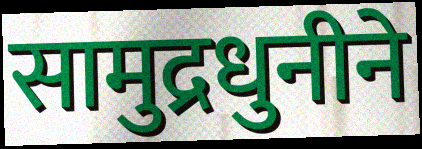
सामुद्रधुनीने